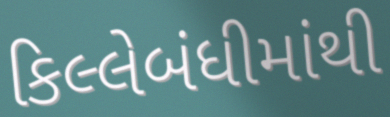
કિલ્લેબંધીમાંથી